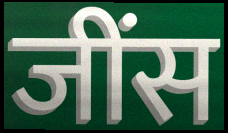
जींस